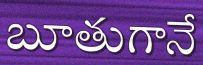
బూతుగానే